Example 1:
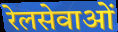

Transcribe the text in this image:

रेलसेवाओं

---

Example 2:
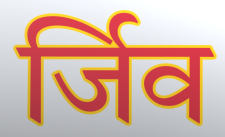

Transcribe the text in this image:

र्जिव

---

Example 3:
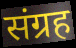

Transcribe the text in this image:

संग्रह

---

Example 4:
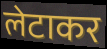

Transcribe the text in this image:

लेटाकर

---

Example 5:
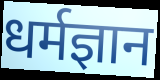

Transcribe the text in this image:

धर्मज्ञान